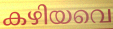
കഴിയവെ